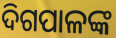
ଦିଗପାଳଙ୍କ